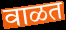
वाळत